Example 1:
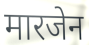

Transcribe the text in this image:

मारजेन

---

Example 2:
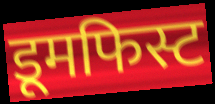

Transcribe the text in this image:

डूमफिस्ट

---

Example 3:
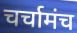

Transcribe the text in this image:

चर्चामंच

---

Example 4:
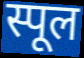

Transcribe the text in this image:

स्पूल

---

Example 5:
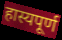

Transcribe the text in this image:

हास्यपूर्ण